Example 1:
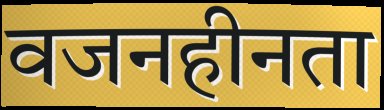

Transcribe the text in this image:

वजनहीनता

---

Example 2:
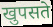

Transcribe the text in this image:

खुपसते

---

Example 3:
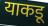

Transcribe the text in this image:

याकडू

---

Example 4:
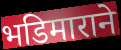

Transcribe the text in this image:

भडिमाराने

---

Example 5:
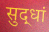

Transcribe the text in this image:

सुद्धां